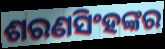
ଶରଣସିଂହଙ୍କର